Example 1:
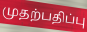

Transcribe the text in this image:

முதற்பதிப்பு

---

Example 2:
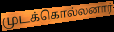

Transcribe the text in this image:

முடக்கொல்லனார்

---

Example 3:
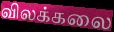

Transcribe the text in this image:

விலக்கலை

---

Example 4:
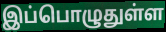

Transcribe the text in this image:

இப்பொழுதுள்ள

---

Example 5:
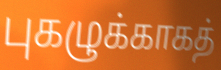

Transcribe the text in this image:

புகழுக்காகத்